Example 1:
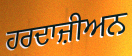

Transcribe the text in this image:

ਹਰਦਾਜ਼ੀਅਨ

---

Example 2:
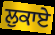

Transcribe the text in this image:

ਲੁਕਾਏ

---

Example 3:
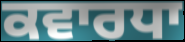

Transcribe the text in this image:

ਕਵਾਰਧਾ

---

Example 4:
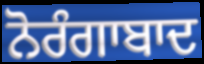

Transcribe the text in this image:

ਨੋਰੰਗਾਬਾਦ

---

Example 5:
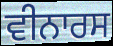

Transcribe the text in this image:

ਵੀਨਾਰਸ